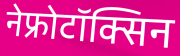
नेफ्रोटॉक्सिन